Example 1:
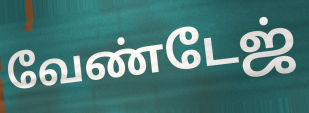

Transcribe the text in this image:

வேண்டேஜ்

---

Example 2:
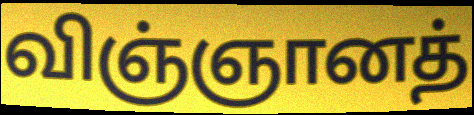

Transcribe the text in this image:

விஞ்ஞானத்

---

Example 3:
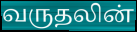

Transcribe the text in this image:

வருதலின்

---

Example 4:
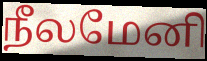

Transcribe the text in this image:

நீலமேனி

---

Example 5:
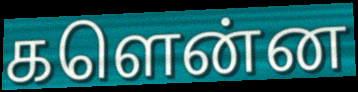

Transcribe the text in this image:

களென்ன